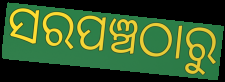
ସରପଞ୍ଚଠାରୁ